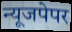
न्‍यूजपेपर